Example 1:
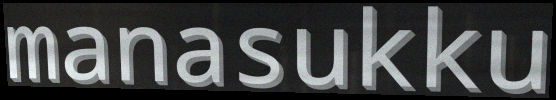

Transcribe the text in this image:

manasukku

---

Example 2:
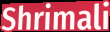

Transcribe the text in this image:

Shrimali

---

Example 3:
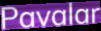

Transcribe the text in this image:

Pavalar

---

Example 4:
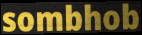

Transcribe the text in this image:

sombhob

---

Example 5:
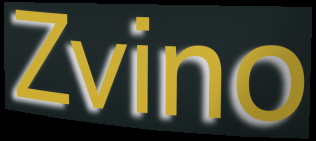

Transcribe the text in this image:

Zvino